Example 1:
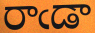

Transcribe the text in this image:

రాఁడా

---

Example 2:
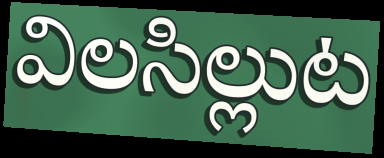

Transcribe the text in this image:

విలసిల్లుట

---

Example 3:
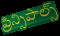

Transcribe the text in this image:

ప్రిన్సిపాల్స్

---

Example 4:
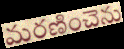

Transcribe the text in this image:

మరణించెను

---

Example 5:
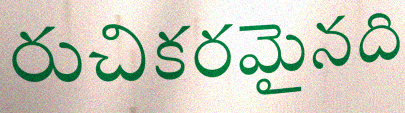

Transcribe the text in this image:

రుచికరమైనది